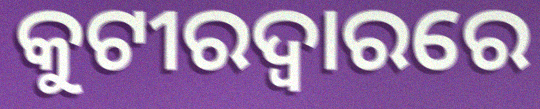
କୁଟୀରଦ୍ୱାରରେ